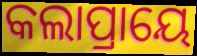
କଲାପ୍ରାୟେ